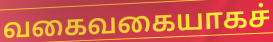
வகைவகையாகச்